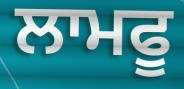
ਲਾਮਫੂ